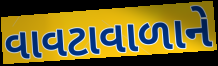
વાવટાવાળાને